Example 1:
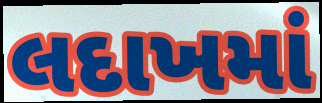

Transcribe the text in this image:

લદાખમાં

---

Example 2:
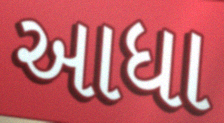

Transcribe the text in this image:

આધા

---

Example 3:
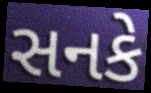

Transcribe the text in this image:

સનકે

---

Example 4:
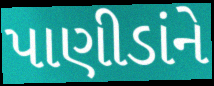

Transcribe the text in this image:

પાણીડાંને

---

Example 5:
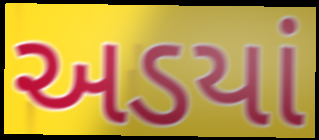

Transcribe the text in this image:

અડયાં